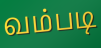
வம்படி